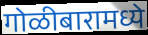
गोळीबारामध्ये